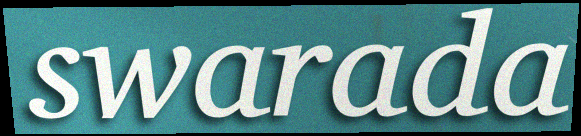
swarada